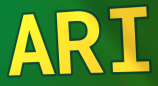
ARI